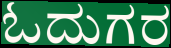
ಓದುಗರ